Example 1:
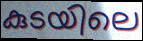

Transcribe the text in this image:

കുടയിലെ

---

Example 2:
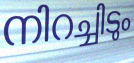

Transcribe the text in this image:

നിറച്ചിടും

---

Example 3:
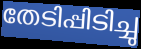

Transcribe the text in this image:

തേടിപ്പിടിച്ചു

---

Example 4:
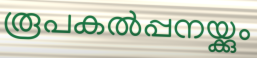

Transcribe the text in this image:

രൂപകൽപ്പനയ്ക്കും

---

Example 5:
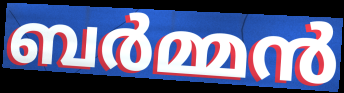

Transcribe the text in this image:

ബർമ്മൻ